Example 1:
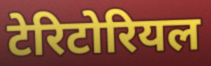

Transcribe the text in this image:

टेरिटोरियल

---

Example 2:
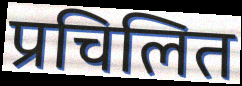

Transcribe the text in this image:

प्रचिलित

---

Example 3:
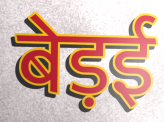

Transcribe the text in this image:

बेड़ई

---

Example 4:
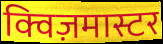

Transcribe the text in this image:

क्विज़मास्टर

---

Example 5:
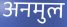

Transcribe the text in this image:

अनमुल